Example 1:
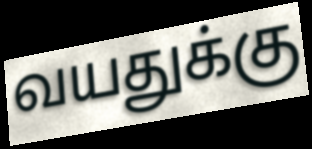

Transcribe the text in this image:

வயதுக்கு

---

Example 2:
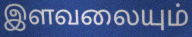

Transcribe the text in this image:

இளவலையும்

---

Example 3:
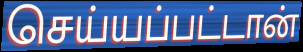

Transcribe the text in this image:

செய்யப்பட்டான்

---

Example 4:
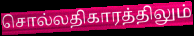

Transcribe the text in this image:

சொல்லதிகாரத்திலும்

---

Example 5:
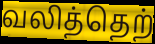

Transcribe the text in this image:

வலித்தெற்